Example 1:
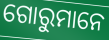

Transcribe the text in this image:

ଗୋରୁମାନେ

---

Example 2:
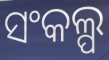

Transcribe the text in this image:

ସଂକଲ୍ପ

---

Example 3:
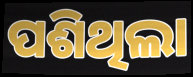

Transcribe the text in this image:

ପଶିଥିଲା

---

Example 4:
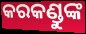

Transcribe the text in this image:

କରକଣ୍ଡୁଙ୍କ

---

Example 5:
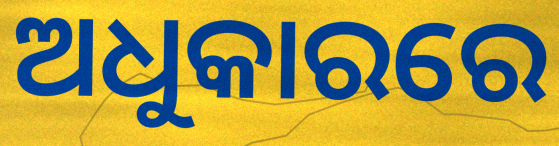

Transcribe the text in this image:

ଅଧୁକାରରେ